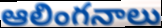
ఆలింగనాలు